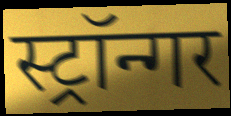
स्ट्रॉन्गर